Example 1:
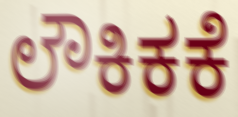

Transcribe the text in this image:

ಲೌಕಿಕಕೆ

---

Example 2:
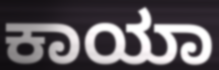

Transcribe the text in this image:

ಕಾಯಾ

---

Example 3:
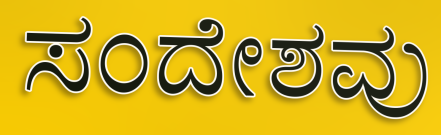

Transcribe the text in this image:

ಸಂದೇಶವು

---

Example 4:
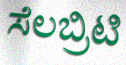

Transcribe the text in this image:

ಸೆಲಬ್ರಿಟಿ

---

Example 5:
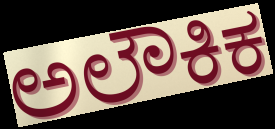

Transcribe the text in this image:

ಅಲೌಕಿಕ